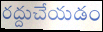
రద్దుచేయడం